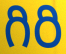
గిరి